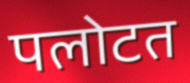
पलोटत